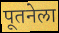
पूतनेला